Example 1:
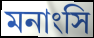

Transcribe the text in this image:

মনাংসি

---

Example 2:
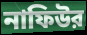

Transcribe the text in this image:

নাফিউর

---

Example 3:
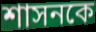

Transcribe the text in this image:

শাসনকে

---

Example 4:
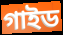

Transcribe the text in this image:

গাইড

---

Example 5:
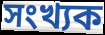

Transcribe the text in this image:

সংখ্যক